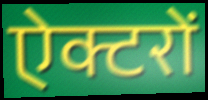
ऐक्टरों